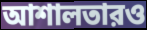
আশালতারও